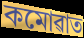
কমোৱাত